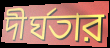
দীর্ঘতার